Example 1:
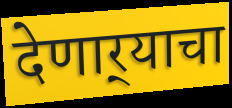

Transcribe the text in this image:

देणार्याचा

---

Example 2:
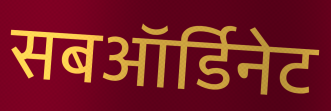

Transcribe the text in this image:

सबऑर्डिनेट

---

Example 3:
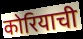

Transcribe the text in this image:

कोरियाची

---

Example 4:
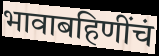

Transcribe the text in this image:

भावाबहिणींचं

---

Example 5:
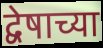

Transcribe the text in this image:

द्वेषाच्या